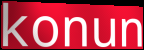
konun